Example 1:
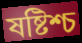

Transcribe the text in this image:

ষষ্টিশ্চ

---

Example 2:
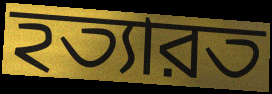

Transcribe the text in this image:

হত্যারত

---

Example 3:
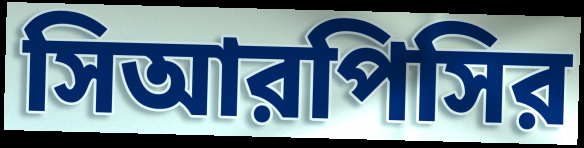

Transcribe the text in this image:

সিআরপিসির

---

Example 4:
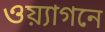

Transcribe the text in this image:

ওয়্যাগনে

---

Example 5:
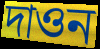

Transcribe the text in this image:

দাওন